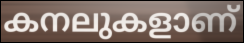
കനലുകളാണ്